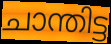
ചാന്തിട്ട